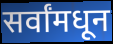
सर्वांमधून